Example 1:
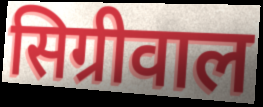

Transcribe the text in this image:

सिग्रीवाल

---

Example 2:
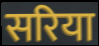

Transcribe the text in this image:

सरिया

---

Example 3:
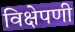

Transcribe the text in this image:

विक्षेपणी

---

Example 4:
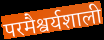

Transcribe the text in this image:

परमैश्वर्यशाली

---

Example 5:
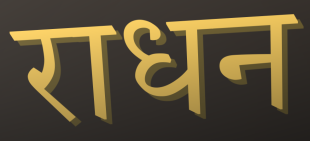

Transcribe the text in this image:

राधन